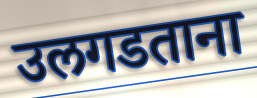
उलगडताना